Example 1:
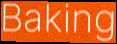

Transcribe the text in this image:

Baking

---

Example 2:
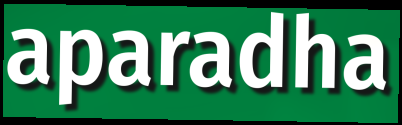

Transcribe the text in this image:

aparadha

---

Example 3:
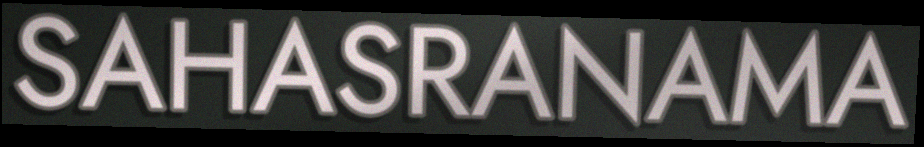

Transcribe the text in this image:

SAHASRANAMA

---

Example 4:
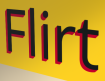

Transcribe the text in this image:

Flirt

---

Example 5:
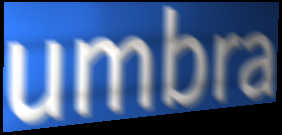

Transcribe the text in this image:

umbra